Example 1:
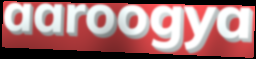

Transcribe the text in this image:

aaroogya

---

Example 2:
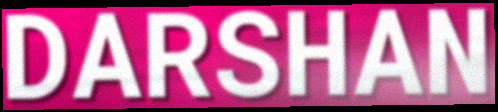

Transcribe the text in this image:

DARSHAN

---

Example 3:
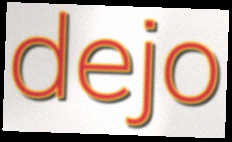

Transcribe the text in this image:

dejo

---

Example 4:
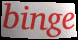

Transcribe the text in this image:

binge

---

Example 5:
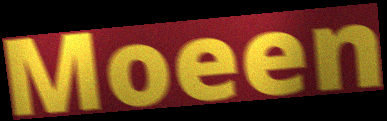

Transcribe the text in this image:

Moeen